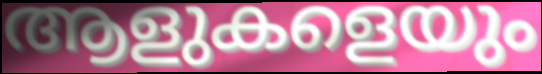
ആളുകളെയും